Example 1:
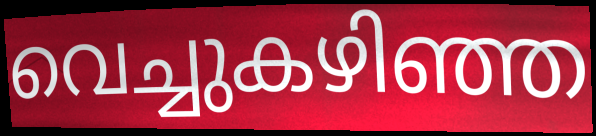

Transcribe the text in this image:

വെച്ചുകഴിഞ്ഞ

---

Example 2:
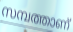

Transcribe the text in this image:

സമ്പത്താണ്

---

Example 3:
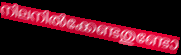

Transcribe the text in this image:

നിലനിൽക്കേണ്ടതുണ്ടോ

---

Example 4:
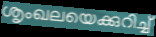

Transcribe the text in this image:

ശൃംഖലയെക്കുറിച്ച്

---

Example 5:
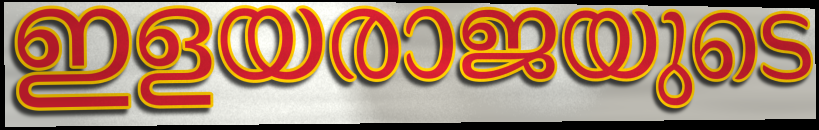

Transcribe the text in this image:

ഇളയരാജയുടെ